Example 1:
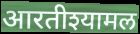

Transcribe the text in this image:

आरतीश्यामल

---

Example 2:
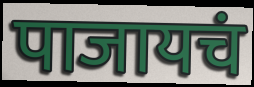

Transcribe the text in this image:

पाजायचं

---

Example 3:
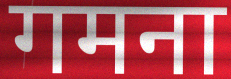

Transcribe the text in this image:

गमना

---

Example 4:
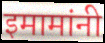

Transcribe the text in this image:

इमामांनी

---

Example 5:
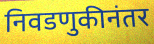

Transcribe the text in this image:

निवडणुकीनंतर